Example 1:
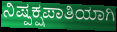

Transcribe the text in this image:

ನಿಷ್ಪಕ್ಷಪಾತಿಯಾಗಿ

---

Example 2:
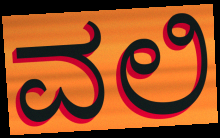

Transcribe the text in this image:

ವಲಿ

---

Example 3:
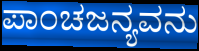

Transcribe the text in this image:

ಪಾಂಚಜನ್ಯವನು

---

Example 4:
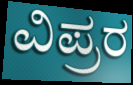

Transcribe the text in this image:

ವಿಪ್ರರ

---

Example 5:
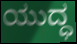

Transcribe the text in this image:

ಯುದ್ಧ